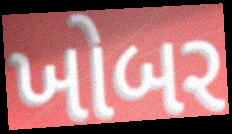
ખોબર